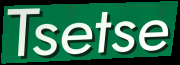
Tsetse